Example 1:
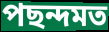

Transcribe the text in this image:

পছন্দমত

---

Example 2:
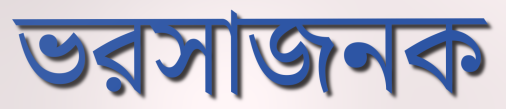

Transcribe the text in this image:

ভরসাজনক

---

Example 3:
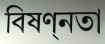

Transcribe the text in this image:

বিষণ্নতা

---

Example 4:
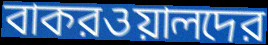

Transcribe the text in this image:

বাকরওয়ালদের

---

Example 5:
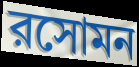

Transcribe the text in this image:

রসোমন